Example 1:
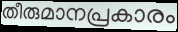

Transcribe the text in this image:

തീരുമാനപ്രകാരം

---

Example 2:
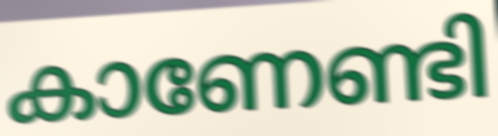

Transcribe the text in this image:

കാണേണ്ടി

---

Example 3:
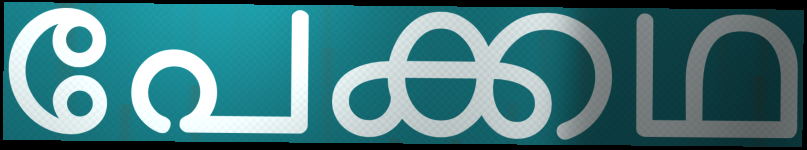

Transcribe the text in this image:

പേക്കഥ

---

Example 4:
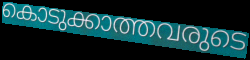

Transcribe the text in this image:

കൊടുക്കാത്തവരുടെ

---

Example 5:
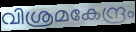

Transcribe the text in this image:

വിശ്രമകേന്ദ്രം